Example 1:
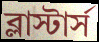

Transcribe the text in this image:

ব্লাস্টার্স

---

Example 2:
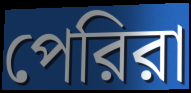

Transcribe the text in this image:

পেরিরা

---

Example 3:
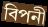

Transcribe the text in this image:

বিপনী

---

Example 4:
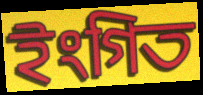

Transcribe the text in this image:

ইংগিত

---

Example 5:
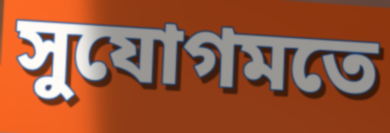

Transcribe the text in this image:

সুযোগমতে